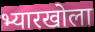
भ्यारखोला